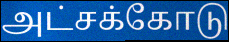
அட்சக்கோடு